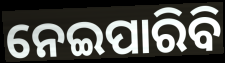
ନେଇପାରିବି